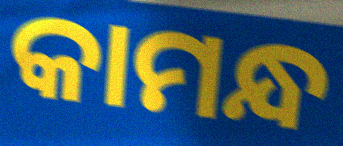
କାମନ୍ଧ